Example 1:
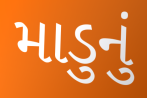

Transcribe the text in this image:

માડુનું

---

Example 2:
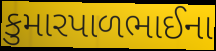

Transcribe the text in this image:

કુમારપાળભાઈના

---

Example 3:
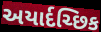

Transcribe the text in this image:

અયાર્દચ્છિક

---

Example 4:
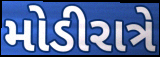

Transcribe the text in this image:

મોડીરાત્રે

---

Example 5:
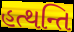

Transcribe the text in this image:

હત્થન્તિ